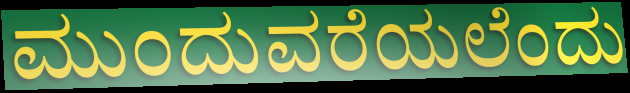
ಮುಂದುವರೆಯಲೆಂದು